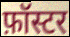
फ़ॉस्टर